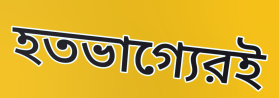
হতভাগ্যেরই